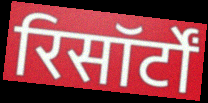
रिसॉर्टों